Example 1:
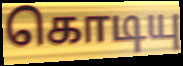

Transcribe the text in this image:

கொடியு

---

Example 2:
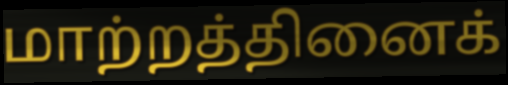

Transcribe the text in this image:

மாற்றத்தினைக்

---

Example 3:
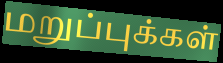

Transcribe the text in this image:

மறுப்புக்கள்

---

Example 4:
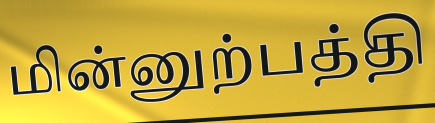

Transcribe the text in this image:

மின்னுற்பத்தி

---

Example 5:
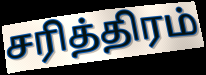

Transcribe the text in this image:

சரித்திரம்